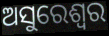
ଅସୁରେଶ୍ୱର